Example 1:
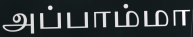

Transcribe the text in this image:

அப்பாம்மா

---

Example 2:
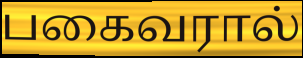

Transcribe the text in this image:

பகைவரால்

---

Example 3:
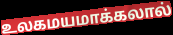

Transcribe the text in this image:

உலகமயமாக்கலால்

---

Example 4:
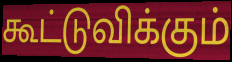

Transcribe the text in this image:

கூட்டுவிக்கும்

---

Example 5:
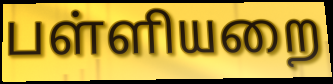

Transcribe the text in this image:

பள்ளியறை